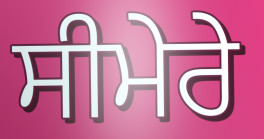
ਸੀਮੇਰੇ